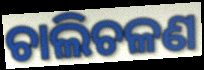
ଚାଲିଚଳଣ